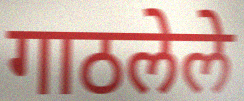
गाठलेले